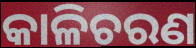
କାଳିଚରଣ